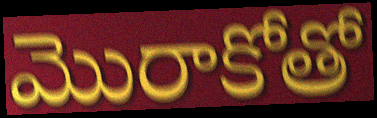
మొరాకోతో